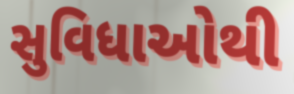
સુવિધાઓથી